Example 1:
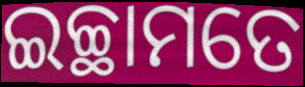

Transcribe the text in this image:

ଇଚ୍ଛାମତେ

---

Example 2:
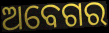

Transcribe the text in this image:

ଅବେଗର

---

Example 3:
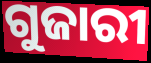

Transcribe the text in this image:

ଗୁଜାରୀ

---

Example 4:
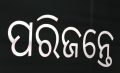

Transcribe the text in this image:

ପରିଜନ୍ତେ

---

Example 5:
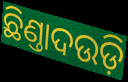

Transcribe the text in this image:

ଛିଣ୍ତାଦଉଡ଼ି